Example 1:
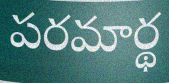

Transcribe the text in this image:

పరమార్థ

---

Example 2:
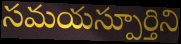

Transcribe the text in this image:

సమయస్పూర్తిని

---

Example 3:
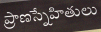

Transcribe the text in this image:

ప్రాణస్నేహితులు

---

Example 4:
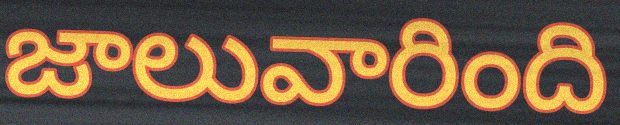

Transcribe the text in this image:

జాలువారింది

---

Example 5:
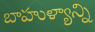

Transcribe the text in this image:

బాహుళ్యాన్ని